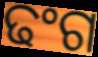
ଢଂଗ